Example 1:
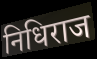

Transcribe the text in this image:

निधिराज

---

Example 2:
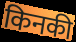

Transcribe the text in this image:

किनकी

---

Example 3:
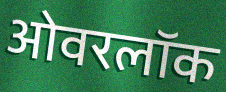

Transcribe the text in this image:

ओवरलॉक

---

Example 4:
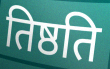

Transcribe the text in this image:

तिष्ठति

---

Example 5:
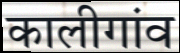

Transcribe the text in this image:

कालीगांव